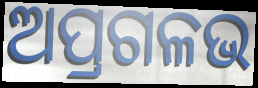
ଅପ୍ରଗଳଭ